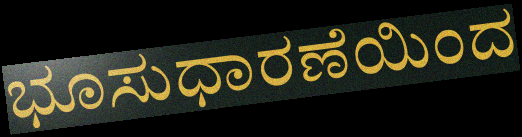
ಭೂಸುಧಾರಣೆಯಿಂದ